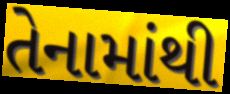
તેનામાંથી